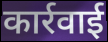
कार्रवाई